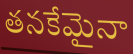
తనకేమైనా